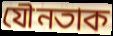
যৌনতাক